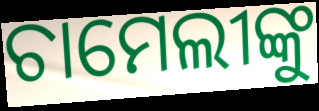
ଚାମେଲୀଙ୍କୁ